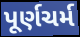
પૂર્ણચર્મ